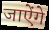
जाऐंगे